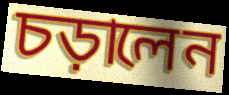
চড়ালেন